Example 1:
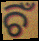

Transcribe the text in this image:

ଚିଁ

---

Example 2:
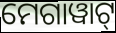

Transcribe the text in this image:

ମେଗାୱାଟ୍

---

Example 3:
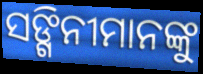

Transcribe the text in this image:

ସଙ୍ଗିନୀମାନଙ୍କୁ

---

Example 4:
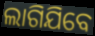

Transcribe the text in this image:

ଲାଗିଯିବେ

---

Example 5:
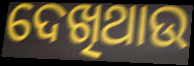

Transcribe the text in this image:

ଦେଖିଥାଉ